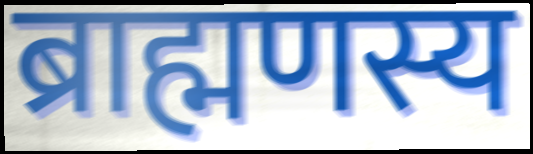
ब्राह्मणस्य